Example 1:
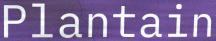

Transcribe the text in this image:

Plantain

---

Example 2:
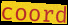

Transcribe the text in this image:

coord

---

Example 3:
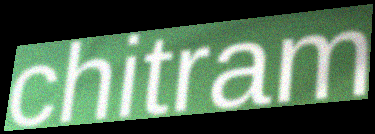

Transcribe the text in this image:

chitram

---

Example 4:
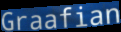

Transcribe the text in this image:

Graafian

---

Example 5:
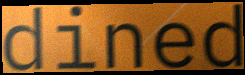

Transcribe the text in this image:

dined